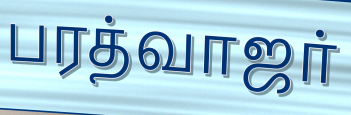
பரத்வாஜர்